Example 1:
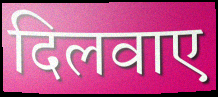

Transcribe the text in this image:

दिलवाए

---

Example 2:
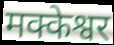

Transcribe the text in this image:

मक्केश्वर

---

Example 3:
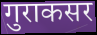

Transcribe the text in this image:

गुराकसर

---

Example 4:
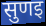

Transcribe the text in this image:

सुणइ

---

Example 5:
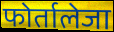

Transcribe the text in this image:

फोर्तालेजा